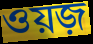
ওয়জ়